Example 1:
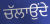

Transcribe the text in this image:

ਚੱਲਾਉਂਦੇ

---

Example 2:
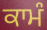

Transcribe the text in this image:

ਕਾਮੰ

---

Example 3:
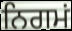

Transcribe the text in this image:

ਨਿਗਮਂ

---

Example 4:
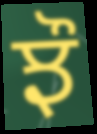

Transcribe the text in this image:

ਝੌ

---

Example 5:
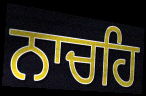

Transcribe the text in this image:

ਨਾਚਹਿ